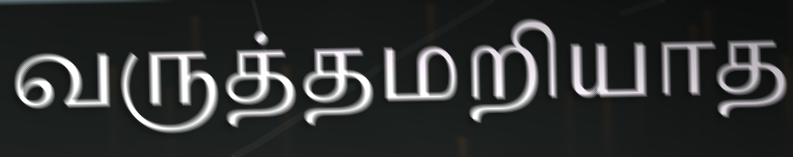
வருத்தமறியாத